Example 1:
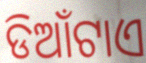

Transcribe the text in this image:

ଡିଆଁଟାଏ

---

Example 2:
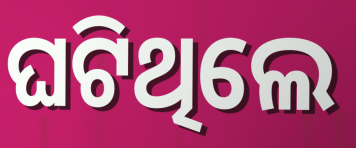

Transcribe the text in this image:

ଘଟିଥିଲେ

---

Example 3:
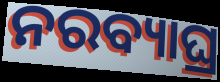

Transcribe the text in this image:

ନରବ୍ୟାଘ୍ର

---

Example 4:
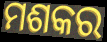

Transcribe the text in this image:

ମଶକର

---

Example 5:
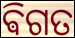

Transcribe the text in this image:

ଵିଗତ